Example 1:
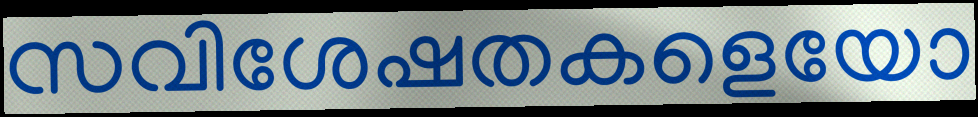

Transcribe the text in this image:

സവിശേഷതകളെയോ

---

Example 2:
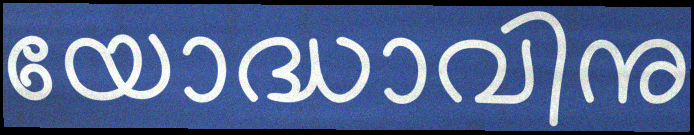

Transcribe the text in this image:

യോദ്ധാവിനു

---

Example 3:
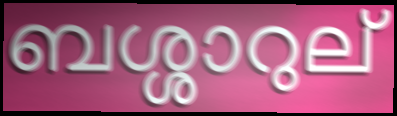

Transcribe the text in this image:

ബശ്ശാറുല്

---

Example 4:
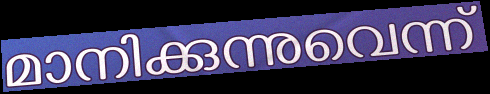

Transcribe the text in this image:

മാനിക്കുന്നുവെന്ന്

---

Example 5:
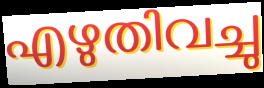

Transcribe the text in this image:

എഴുതിവച്ചു